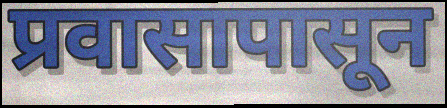
प्रवासापासून